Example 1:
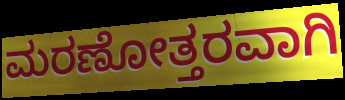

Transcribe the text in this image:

ಮರಣೋತ್ತರವಾಗಿ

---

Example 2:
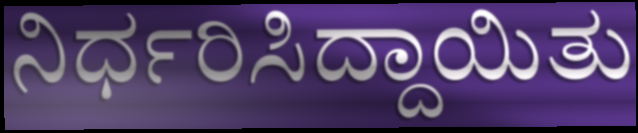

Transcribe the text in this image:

ನಿರ್ಧರಿಸಿದ್ದಾಯಿತು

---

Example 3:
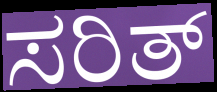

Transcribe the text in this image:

ಸರಿತ್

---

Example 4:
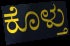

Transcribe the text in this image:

ಕೊಳ್ತು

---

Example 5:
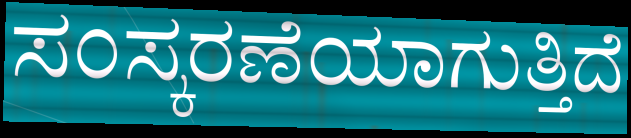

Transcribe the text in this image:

ಸಂಸ್ಕರಣೆಯಾಗುತ್ತಿದೆ